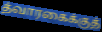
த்வாரகைக்குத்